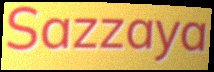
Sazzaya